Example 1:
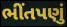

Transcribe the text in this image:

ભીંતપણું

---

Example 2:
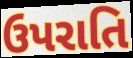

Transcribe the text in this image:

ઉપરાતિ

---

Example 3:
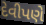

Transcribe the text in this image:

દેવીપણે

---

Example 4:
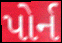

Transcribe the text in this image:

પોર્ન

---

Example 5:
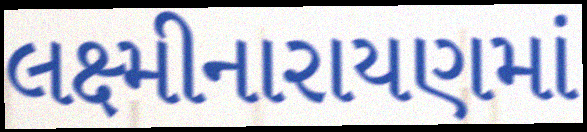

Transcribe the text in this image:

લક્ષ્મીનારાયણમાં